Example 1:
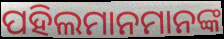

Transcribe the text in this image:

ପହିଲମାନମାନଙ୍କ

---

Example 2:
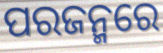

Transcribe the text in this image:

ପରଜନ୍ମରେ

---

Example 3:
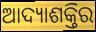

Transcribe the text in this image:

ଆଦ୍ୟାଶକ୍ତିର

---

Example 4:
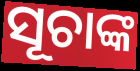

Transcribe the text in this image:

ସୂଚାଙ୍କ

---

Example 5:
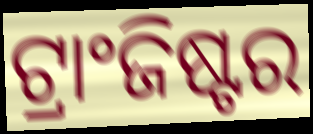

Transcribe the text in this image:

ଟ୍ରାଂଜିଷ୍ଟର